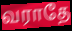
வராதே